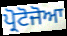
ਪ੍ਰੋਟੋਜੋਆ